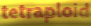
tetraploid